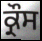
ਕ੍ਰੌਸ